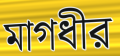
মাগধীর